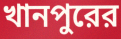
খানপুরের